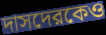
দাসদেরকেও